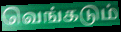
வெங்கடும்